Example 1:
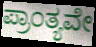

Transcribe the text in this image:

ಪ್ರಾಂತ್ಯವೇ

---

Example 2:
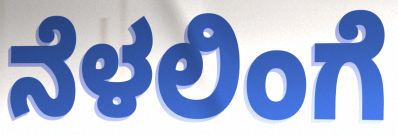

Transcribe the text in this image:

ನೆಳಲಿಂಗೆ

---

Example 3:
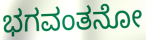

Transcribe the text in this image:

ಭಗವಂತನೋ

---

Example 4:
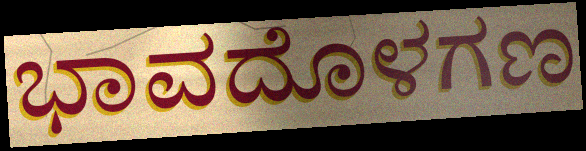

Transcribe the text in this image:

ಭಾವದೊಳಗಣ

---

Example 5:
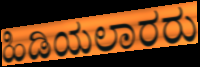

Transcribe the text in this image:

ಹಿಡಿಯಲಾರರು